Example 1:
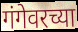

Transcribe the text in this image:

गंगेवरच्या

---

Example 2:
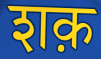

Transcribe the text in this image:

शक़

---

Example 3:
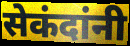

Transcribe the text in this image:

सेकंदांनी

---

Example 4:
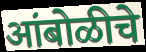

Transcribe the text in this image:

आंबोळीचे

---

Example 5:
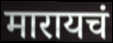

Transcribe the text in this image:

मारायचं